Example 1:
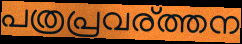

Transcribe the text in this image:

പത്രപ്രവര്ത്തന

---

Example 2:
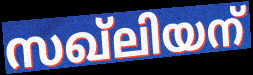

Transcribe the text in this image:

സഖ്ലിയന്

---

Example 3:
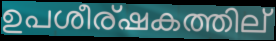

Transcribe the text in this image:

ഉപശീര്ഷകത്തില്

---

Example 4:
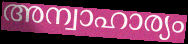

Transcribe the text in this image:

അന്വാഹാര്യം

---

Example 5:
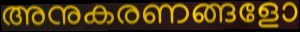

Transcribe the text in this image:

അനുകരണങ്ങളോ